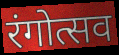
रंगोत्सव